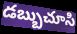
డబ్బుచూసి